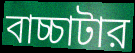
বাচ্চাটার